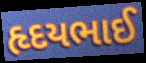
હૃદયભાઈ